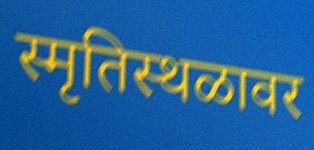
स्मृतिस्थळावर